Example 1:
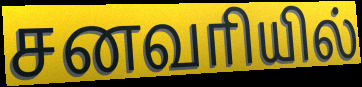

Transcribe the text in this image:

சனவரியில்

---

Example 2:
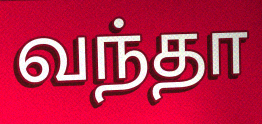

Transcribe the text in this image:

வந்தா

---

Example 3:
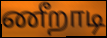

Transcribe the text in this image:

ணீறாடி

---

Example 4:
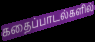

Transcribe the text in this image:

கதைப்பாடல்களில்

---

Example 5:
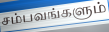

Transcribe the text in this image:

சம்பவங்களும்